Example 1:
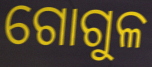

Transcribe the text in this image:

ଗୋଗୁଳ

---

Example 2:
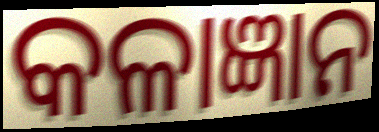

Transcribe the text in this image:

କଳାଜ୍ଞାନ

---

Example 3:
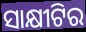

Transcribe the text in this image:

ସାକ୍ଷୀଟିର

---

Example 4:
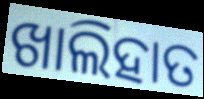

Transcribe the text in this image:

ଖାଲିହାତ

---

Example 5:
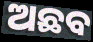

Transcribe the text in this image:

ଅଛବ